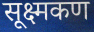
सूक्ष्मकण